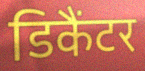
डिकैंटर